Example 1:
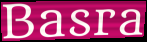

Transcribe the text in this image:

Basra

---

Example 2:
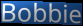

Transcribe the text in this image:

Bobbie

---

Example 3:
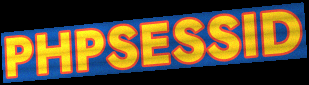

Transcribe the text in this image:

PHPSESSID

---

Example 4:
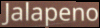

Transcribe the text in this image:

Jalapeno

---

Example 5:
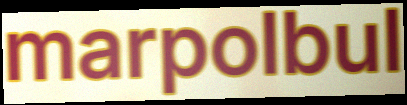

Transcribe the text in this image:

marpolbul